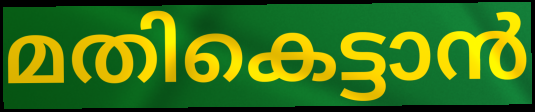
മതികെട്ടാൻ